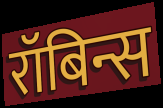
रॉबिन्स